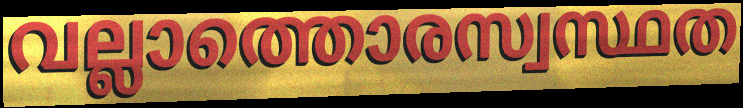
വല്ലാത്തൊരസ്വസ്ഥത